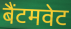
बैंटमवेट